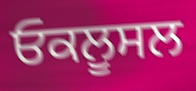
ਓਕਲੂਸਲ